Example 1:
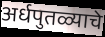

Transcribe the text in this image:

अर्धपुतळ्याचे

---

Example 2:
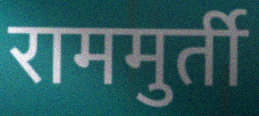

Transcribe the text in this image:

राममुर्ती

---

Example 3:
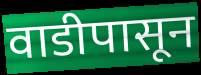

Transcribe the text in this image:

वाडीपासून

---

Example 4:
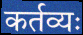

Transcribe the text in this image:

कर्तव्यः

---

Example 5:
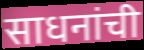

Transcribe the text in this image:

साधनांची